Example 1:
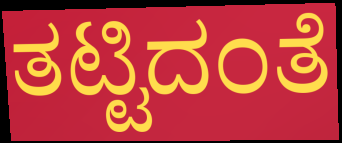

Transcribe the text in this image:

ತಟ್ಟಿದಂತೆ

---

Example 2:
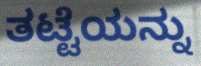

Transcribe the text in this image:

ತಟ್ಟೆಯನ್ನು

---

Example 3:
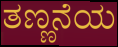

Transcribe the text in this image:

ತಣ್ಣನೆಯ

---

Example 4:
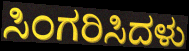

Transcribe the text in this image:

ಸಿಂಗರಿಸಿದಳು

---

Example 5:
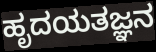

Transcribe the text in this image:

ಹೃದಯತಜ್ಞನ